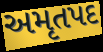
અમૃતપદ